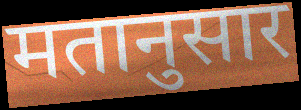
मतानुसार